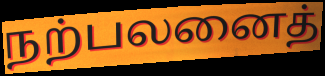
நற்பலனைத்